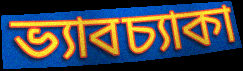
ভ্যাবচ্যাকা